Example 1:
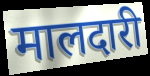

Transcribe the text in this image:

मालदारी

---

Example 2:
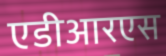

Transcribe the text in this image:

एडीआरएस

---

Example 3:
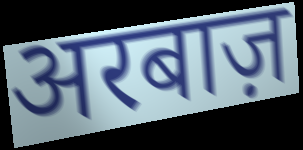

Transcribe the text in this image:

अरबाज़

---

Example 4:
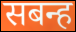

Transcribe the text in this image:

सबन्ह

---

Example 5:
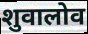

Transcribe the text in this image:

शुवालोव